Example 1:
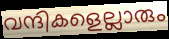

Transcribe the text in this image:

വന്ദികളെല്ലാരും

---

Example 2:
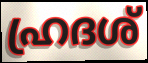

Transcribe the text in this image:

ഹ്രദശ്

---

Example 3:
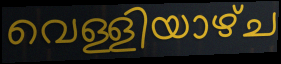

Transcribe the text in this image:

വെള്ളിയാഴ്‌ച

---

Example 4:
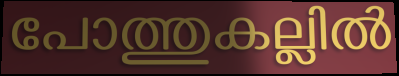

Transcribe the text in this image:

പോത്തുകല്ലിൽ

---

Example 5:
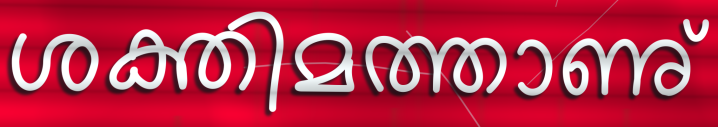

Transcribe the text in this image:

ശക്തിമത്താണു്